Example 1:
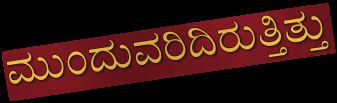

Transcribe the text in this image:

ಮುಂದುವರಿದಿರುತ್ತಿತ್ತು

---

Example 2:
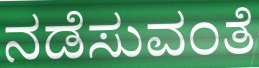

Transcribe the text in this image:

ನಡೆಸುವಂತೆ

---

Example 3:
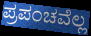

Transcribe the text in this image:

ಪ್ರಪಂಚವೆಲ್ಲ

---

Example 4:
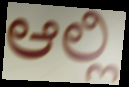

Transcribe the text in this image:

ಆಲ್ಲಿ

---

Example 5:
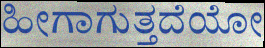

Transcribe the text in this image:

ಹೀಗಾಗುತ್ತದೆಯೋ